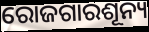
ରୋଜଗାରଶୂନ୍ୟ